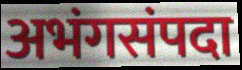
अभंगसंपदा